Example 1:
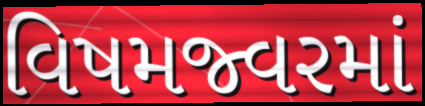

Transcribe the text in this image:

વિષમજ્વરમાં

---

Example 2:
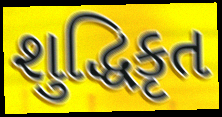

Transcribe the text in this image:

શુદ્ધિકૃત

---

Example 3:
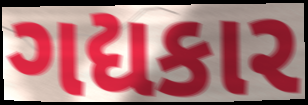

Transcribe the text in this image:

ગદ્યકાર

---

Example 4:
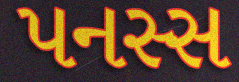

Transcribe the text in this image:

પનસ્સ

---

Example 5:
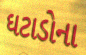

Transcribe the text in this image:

ઘટાડોના